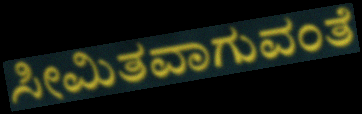
ಸೀಮಿತವಾಗುವಂತೆ